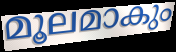
മൂലമാകും